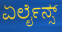
ಏರ್ಲೈನ್ಸ್